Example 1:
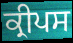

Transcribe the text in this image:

ਕ੍ਰੀਪਸ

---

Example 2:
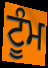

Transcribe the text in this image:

ਟੂੰਮ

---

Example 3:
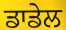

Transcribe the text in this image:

ਡਾਡੇਲ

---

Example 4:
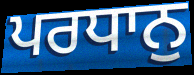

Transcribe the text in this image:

ਪਰਧਾਨੁ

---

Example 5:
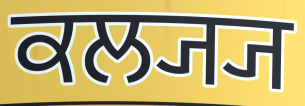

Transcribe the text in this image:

ਕਲ੍ਯ੍ਯ